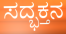
ಸದ್ಭಕ್ತನ